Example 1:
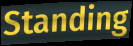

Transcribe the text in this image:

Standing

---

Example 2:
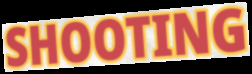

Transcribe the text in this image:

SHOOTING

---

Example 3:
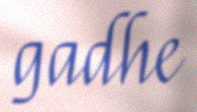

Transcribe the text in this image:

gadhe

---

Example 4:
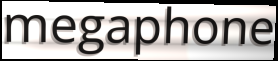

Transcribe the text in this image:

megaphone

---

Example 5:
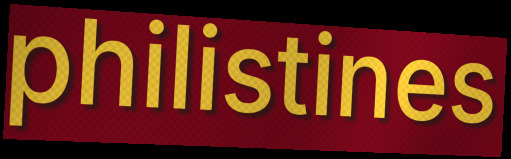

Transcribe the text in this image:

philistines